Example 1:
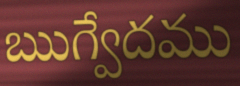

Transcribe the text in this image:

ఋగ్వేదము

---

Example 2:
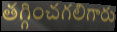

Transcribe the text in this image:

తగ్గించగలిగారు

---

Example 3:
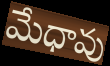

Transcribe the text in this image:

మేధావు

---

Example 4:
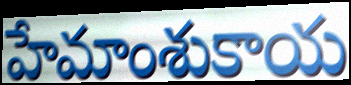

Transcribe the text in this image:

హేమాంశుకాయ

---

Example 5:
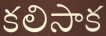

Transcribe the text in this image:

కలిసాక